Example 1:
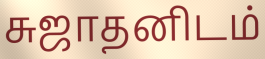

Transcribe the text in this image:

சுஜாதனிடம்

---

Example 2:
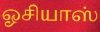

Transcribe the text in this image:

ஓசியாஸ்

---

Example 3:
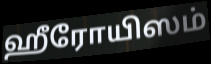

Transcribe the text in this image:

ஹீரோயிஸம்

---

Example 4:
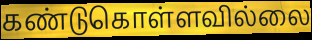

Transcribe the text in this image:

கண்டுகொள்ளவில்லை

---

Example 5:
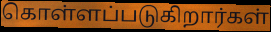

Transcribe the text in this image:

கொள்ளப்படுகிறார்கள்